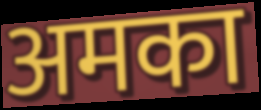
अमका